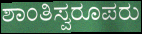
ಶಾಂತಿಸ್ವರೂಪರು